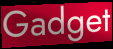
Gadget